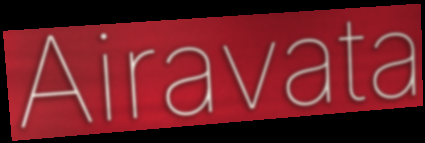
Airavata